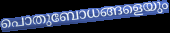
പൊതുബോധങ്ങളെയും